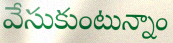
వేసుకుంటున్నాం